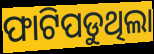
ଫାଟିପଡୁଥିଲା